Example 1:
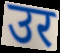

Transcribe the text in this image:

उर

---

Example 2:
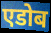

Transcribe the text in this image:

एडोब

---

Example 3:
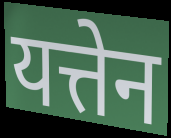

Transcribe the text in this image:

यत्तेन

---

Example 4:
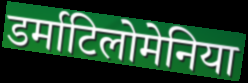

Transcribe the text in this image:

डर्माटिलोमेनिया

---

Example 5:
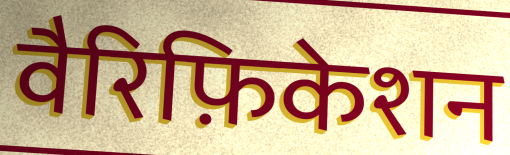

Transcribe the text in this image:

वैरिफ़िकेशन